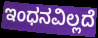
ಇಂಧನವಿಲ್ಲದೆ